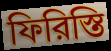
ফিরিস্তি